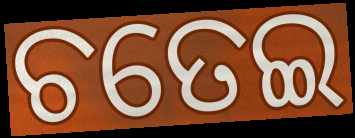
ଚତେଇ